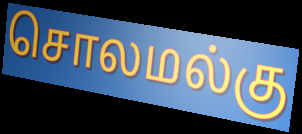
சொலமல்கு